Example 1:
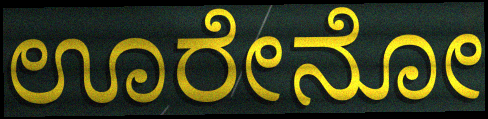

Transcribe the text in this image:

ಊರೇನೋ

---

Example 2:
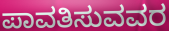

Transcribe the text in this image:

ಪಾವತಿಸುವವರ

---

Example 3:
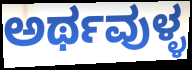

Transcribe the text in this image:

ಅರ್ಥವುಳ್ಳ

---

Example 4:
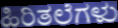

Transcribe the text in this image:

ಹಿರಿತಲೆಗಳು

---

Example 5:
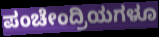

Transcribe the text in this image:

ಪಂಚೇಂದ್ರಿಯಗಳೂ